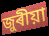
জুৰীয়া